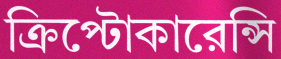
ক্রিপ্টোকারেন্সি